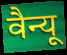
वैन्यू